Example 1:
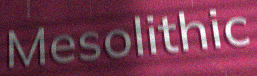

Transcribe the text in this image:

Mesolithic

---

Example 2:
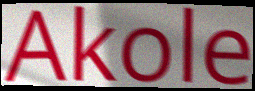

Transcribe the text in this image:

Akole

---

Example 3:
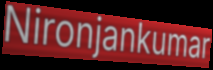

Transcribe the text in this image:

Nironjankumar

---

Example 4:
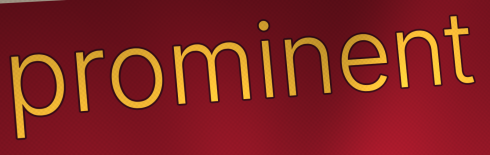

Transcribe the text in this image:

prominent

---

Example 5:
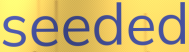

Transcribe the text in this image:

seeded